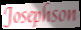
Josephson